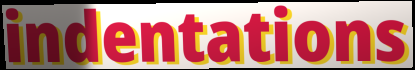
indentations